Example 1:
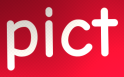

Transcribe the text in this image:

pict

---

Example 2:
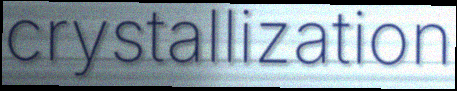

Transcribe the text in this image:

crystallization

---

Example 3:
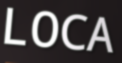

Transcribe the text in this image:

LOCA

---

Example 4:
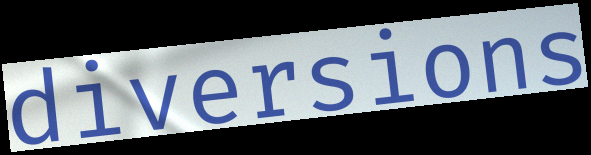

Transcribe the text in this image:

diversions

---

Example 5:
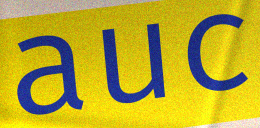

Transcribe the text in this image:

auc